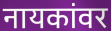
नायकांवर